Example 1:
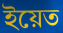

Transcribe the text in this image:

ইয়েত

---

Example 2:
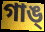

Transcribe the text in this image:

গাঙ্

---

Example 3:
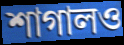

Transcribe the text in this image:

শাগালও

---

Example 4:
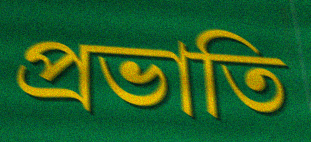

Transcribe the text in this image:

প্রভাতি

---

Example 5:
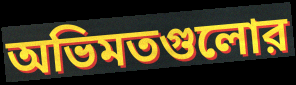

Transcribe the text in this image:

অভিমতগুলোর